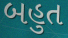
બહુત